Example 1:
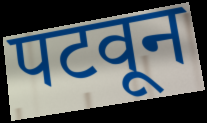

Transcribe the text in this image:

पटवून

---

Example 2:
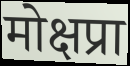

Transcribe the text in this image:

मोक्षप्रा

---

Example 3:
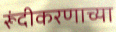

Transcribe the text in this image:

रूंदीकरणाच्या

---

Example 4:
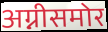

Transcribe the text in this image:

अग्नीसमोर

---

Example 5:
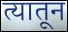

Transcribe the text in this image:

त्‍यातून